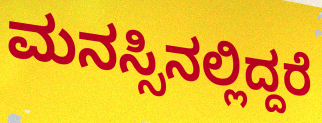
ಮನಸ್ಸಿನಲ್ಲಿದ್ದರೆ